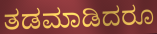
ತಡಮಾಡಿದರೂ